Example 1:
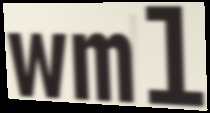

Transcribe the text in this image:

wml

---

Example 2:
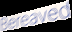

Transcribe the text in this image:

Bereaved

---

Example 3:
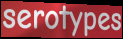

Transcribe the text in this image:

serotypes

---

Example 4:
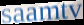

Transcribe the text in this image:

saamtv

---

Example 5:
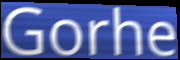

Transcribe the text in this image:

Gorhe